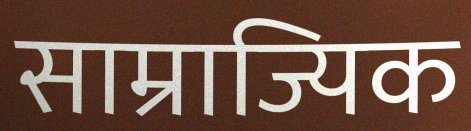
साम्राज्यिक